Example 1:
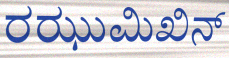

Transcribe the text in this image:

ರಝುಮಿಖಿನ್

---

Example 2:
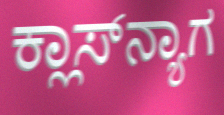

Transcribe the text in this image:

ಕ್ಲಾಸ್‌ನ್ಯಾಗ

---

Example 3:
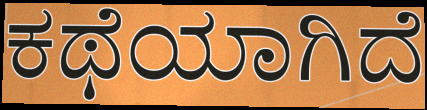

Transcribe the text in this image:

ಕಥೆಯಾಗಿದೆ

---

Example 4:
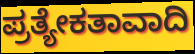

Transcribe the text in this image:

ಪ್ರತ್ಯೇಕತಾವಾದಿ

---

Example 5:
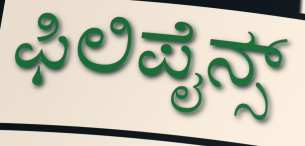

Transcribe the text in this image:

ಫಿಲಿಪೈನ್ಸ್